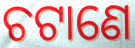
ଚଟାଣେ